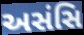
અસંસિ